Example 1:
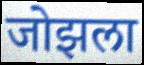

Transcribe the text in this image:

जोझला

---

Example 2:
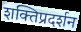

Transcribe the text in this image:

शक्तिप्रदर्शन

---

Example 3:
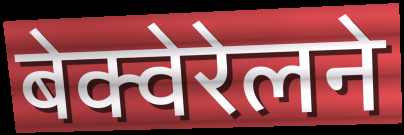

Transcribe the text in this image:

बेक्वेरेलने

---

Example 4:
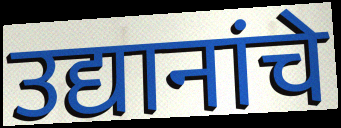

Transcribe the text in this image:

उद्यानांचे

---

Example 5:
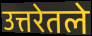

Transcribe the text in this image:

उत्तरेतले